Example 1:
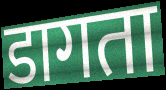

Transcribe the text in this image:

डागता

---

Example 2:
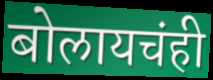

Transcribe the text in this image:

बोलायचंही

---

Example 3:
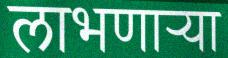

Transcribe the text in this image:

लाभणार्‍या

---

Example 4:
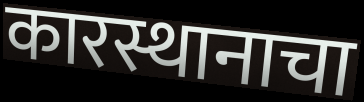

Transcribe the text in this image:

कारस्थानाचा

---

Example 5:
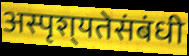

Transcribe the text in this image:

अस्पृश्यतेसंबंधी